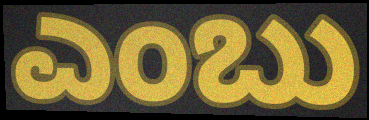
ಎಂಬು